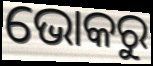
ଭୋକରୁ